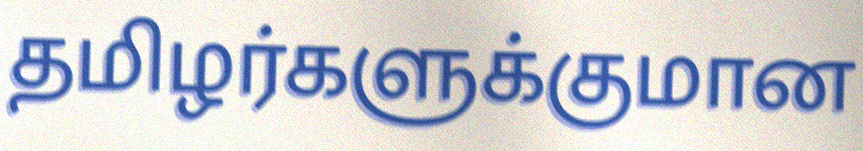
தமிழர்களுக்குமான